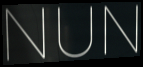
NUN